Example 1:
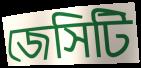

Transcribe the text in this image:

জেসিটি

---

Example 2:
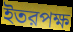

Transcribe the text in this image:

ইতরপক্ষ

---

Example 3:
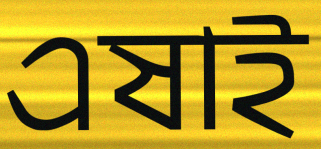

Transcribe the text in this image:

এষাই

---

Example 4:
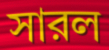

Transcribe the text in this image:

সারল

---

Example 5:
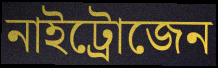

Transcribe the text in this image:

নাইট্রোজেন